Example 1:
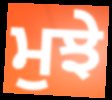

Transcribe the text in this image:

ਮੁਝੇ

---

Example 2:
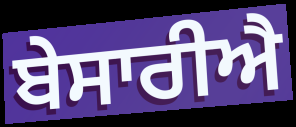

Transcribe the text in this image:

ਬੇਸਾਰੀਐ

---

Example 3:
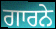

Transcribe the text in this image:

ਗਾਰਨੇ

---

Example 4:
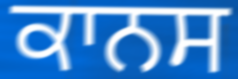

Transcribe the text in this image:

ਕਾਨਸ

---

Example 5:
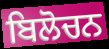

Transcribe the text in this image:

ਬਿਲੋਚਨ